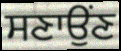
ਸਣਾਉਂਣ